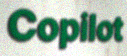
Copilot